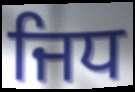
ਜਿਧ